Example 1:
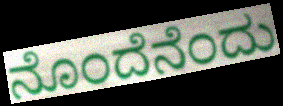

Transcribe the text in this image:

ನೊಂದೆನೆಂದು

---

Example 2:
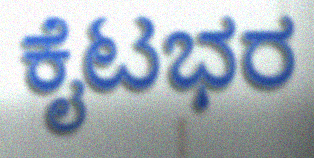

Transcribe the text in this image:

ಕೈಟಭರ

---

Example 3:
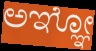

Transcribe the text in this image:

ಅಞ್ಞೋ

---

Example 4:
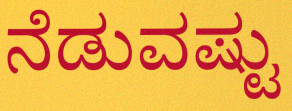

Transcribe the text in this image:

ನೆಡುವಷ್ಟು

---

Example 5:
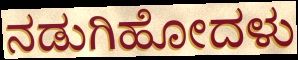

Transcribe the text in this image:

ನಡುಗಿಹೋದಳು